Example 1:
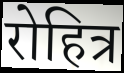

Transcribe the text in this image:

रोहित्र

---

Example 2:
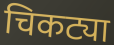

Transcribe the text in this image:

चिकट्या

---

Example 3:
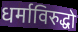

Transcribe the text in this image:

धर्माविरुद्धो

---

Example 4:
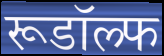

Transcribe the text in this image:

रूडॉल्फ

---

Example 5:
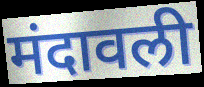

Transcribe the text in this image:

मंदावली